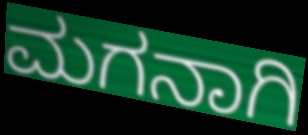
ಮಗನಾಗಿ